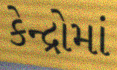
કેન્દ્રોમાં